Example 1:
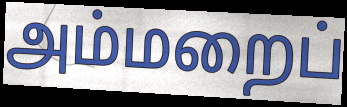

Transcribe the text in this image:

அம்மறைப்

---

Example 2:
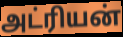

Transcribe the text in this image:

அட்ரியன்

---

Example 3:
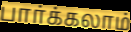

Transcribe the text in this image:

பார்க்கலாம்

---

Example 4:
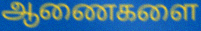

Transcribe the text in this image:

ஆணைகளை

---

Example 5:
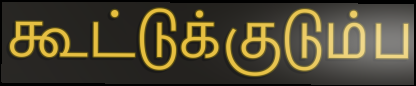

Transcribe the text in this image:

கூட்டுக்குடும்ப